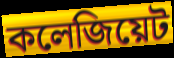
কলেজিয়েট